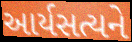
આર્યસત્યને